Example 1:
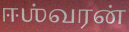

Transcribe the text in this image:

ஈஶ்வரன்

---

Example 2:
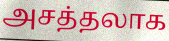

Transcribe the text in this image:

அசத்தலாக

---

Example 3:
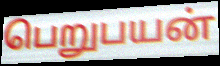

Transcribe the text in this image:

பெறுபயன்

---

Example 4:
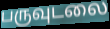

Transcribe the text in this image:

பருவுடலை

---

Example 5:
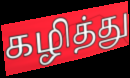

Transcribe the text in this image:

கழித்து